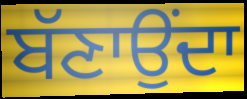
ਬੱਣਾਉਂਦਾ